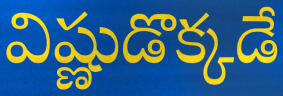
విష్ణుడొక్కడే